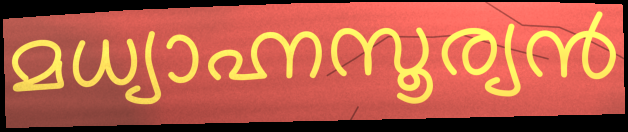
മധ്യാഹ്നസൂര്യൻ